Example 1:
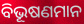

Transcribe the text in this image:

ବିଭୂଷଣମାନ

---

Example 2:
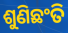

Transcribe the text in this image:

ଶୁଣିଛଂତି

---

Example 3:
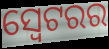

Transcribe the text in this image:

ସ୍ୱେଟରର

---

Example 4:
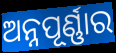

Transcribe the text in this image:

ଅନ୍ନପୂର୍ଣ୍ଣାର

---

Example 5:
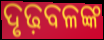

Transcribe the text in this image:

ଦୃଢ଼ବଳଙ୍କ